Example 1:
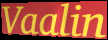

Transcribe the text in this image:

Vaalin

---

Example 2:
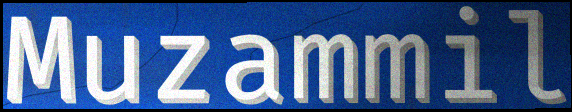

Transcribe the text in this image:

Muzammil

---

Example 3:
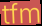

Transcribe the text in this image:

tfm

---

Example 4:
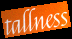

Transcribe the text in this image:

tallness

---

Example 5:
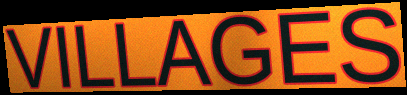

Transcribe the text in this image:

VILLAGES